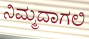
ನಿಮ್ಮದಾಗಲಿ